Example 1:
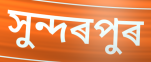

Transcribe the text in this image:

সুন্দৰপুৰ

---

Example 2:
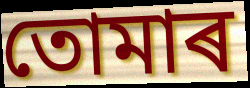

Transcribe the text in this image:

তোমাৰ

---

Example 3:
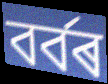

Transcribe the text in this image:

বৰ্বৰ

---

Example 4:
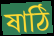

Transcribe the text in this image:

ষাঠি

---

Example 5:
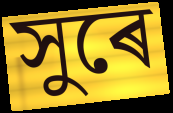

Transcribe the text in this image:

সুৰে